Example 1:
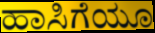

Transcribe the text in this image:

ಹಾಸಿಗೆಯೂ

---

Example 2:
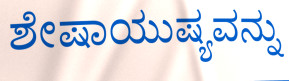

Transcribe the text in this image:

ಶೇಷಾಯುಷ್ಯವನ್ನು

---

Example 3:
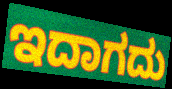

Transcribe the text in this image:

ಇದಾಗದು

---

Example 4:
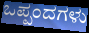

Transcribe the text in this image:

ಒಪ್ಪಂದಗಳು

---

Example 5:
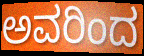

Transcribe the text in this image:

ಅವರಿಂದ